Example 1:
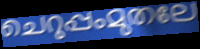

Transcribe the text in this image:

ചെറുപ്പംമുതലേ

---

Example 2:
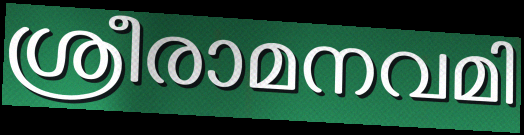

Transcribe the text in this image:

ശ്രീരാമനവമി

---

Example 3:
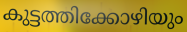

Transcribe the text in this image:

കുട്ടത്തിക്കോഴിയും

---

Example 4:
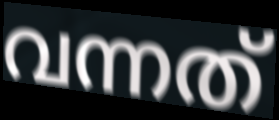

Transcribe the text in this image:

വന്നത്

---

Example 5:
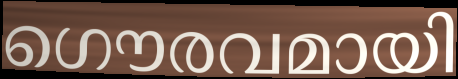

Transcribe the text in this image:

ഗൌരവമായി